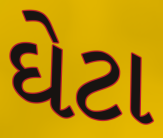
ઘેટા